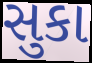
સુકા